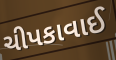
ચીપકાવાઈ